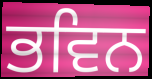
ਭਵਿਨ